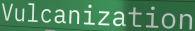
Vulcanization